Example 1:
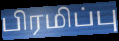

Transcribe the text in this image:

பிரமிப்பு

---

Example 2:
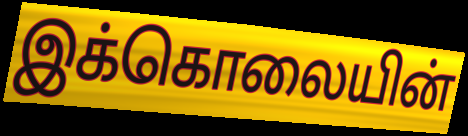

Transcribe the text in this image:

இக்கொலையின்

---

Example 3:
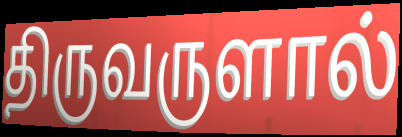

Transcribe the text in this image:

திருவருளால்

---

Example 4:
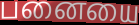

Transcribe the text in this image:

பனையை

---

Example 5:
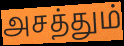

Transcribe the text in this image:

அசத்தும்